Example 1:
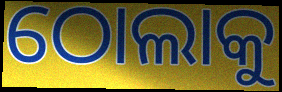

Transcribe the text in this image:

ଠୋଲାକୁ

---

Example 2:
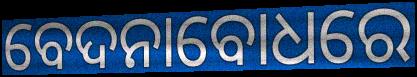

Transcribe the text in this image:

ବେଦନାବୋଧରେ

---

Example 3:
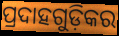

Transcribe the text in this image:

ପ୍ରଦାହଗୁଡ଼ିକର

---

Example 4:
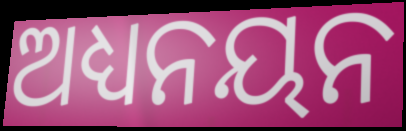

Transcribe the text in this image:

ଅଧ୍ୟନୟନ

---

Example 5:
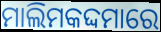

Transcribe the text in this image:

ମାଲିମକଦ୍ଦମାରେ